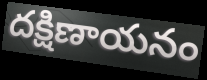
దక్షిణాయనం